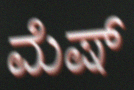
ಮೆಷ್